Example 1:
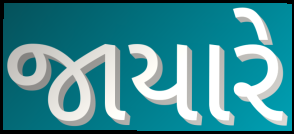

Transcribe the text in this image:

જાયારે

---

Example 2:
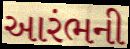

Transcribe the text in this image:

આરંભની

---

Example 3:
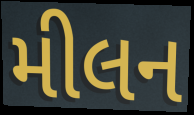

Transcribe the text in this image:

મીલન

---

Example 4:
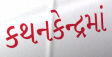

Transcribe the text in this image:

કથનકેન્દ્રમાં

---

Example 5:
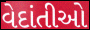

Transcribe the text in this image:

વેદાંતીઓ